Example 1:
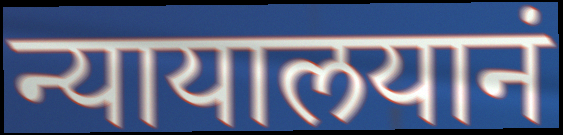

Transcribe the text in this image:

न्यायालयानं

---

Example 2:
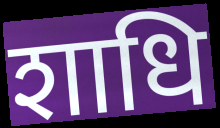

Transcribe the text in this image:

शाधि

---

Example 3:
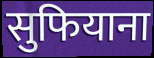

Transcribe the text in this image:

सुफियाना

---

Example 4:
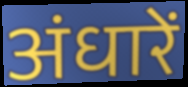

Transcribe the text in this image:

अंधारें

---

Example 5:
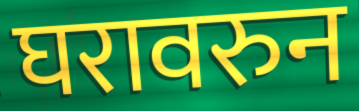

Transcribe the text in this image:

घरावरुन